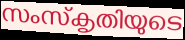
സംസ്‌കൃതിയുടെ